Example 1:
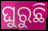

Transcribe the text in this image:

ଘୁରୁଛି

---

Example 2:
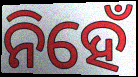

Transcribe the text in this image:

ନିହେଁ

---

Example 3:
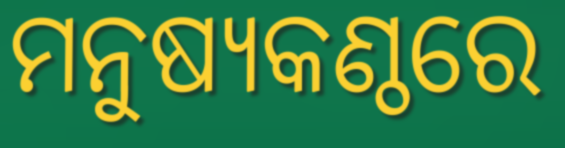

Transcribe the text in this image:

ମନୁଷ୍ୟକଣ୍ଠରେ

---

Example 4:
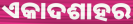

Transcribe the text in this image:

ଏକାଦଶାହର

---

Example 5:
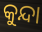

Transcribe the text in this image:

କୁନ୍ଦା